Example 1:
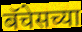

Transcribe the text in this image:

बॅचेसच्या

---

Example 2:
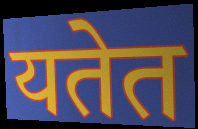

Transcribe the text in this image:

यतेत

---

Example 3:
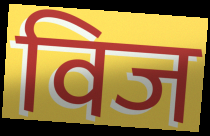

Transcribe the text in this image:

विज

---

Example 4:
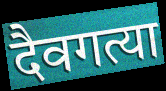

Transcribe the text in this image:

दैवगत्या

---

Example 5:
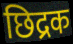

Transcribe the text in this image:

छिद्रक